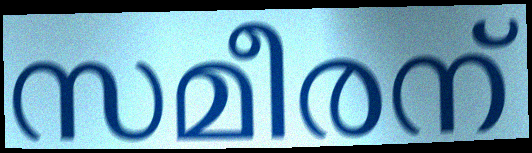
സമീരന്